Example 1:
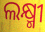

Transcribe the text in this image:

ଲକ୍ଷ୍ମୀ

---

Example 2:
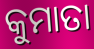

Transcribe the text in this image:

କୁମାତା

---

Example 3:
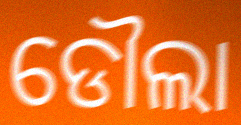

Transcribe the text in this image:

ଡୌଲା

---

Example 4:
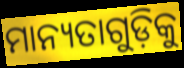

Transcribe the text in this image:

ମାନ୍ୟତାଗୁଡ଼ିକୁ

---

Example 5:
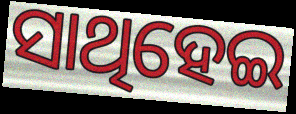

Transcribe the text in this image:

ସାଥିହେଇ